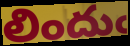
లిందుఁ